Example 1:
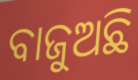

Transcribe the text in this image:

ବାଜୁଅଛି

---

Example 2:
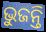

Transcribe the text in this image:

ଭୁଜନ୍ତି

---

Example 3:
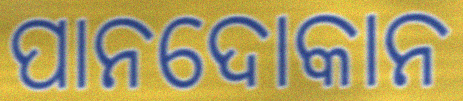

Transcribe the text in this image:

ପାନଦୋକାନ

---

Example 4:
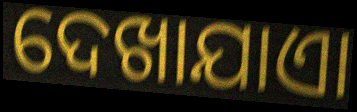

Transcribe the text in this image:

ଦେଖାଯାଏା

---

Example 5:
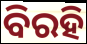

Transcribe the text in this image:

ବିରହି